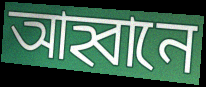
আহ্বানে